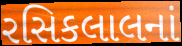
રસિકલાલનાં